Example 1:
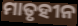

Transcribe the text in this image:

ମାତୃହୀନ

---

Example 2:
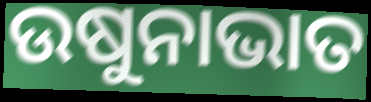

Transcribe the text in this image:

ଉଷୁନାଭାତ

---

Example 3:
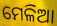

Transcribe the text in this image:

ମେଳିଆ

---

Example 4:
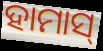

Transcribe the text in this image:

ହାମାସ୍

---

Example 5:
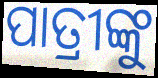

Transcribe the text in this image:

ପାତ୍ରୀଙ୍କୁ